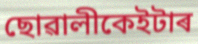
ছোৱালীকেইটাৰ